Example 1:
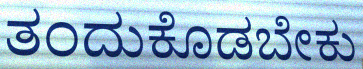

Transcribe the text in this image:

ತಂದುಕೊಡಬೇಕು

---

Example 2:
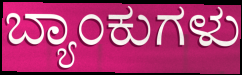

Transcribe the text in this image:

ಬ್ಯಾಂಕುಗಳು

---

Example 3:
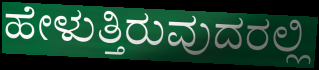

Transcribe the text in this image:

ಹೇಳುತ್ತಿರುವುದರಲ್ಲಿ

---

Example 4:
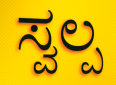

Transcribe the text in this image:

ಸ್ವಲ್ಪ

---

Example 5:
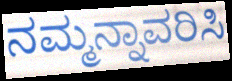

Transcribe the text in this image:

ನಮ್ಮನ್ನಾವರಿಸಿ